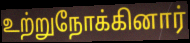
உற்றுநோக்கினார்